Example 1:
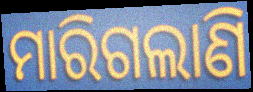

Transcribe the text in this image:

ମାରିଗଲାଣି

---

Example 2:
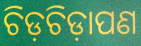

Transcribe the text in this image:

ଚିଡ଼ଚିଡ଼ାପଣ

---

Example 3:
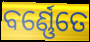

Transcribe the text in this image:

ବର୍ଣ୍ଣେତେ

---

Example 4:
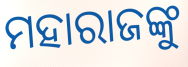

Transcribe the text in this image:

ମହାରାଜଙ୍କୁ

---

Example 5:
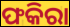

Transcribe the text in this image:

ଫକିରା